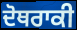
ਦੋਥਰਾਕੀ